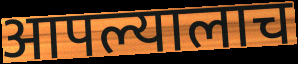
आपल्यालाच